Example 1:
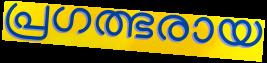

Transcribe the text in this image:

പ്രഗത്ഭരായ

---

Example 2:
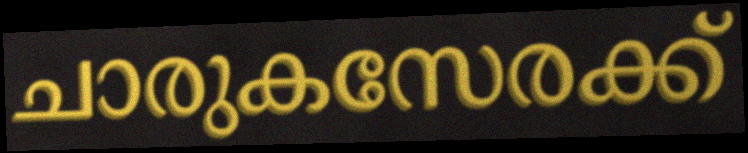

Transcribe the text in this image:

ചാരുകസേരക്ക്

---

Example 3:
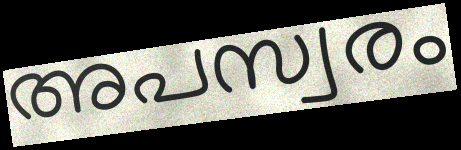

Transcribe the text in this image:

അപസ്വരം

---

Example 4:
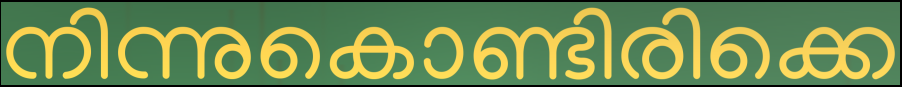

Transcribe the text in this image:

നിന്നുകൊണ്ടിരിക്കെ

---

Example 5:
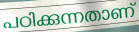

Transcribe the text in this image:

പഠിക്കുന്നതാണ്